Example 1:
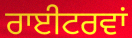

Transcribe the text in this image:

ਰਾਈਟਰਵਾਂ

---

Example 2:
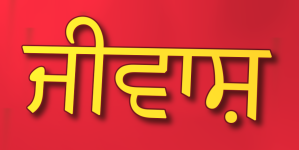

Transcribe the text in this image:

ਜੀਵਾਸ਼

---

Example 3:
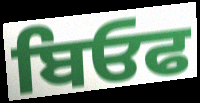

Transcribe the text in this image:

ਬਿਓਫ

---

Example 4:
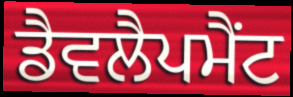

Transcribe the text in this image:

ਡੈਵਲੈਪਮੈਂਟ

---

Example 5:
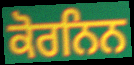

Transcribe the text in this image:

ਕੋਰਨਿਨ